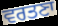
ਵਰਤਣਾ